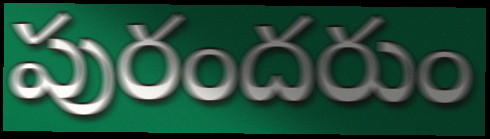
పురందరుం